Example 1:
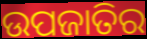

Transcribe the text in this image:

ଉପଜାତିର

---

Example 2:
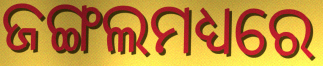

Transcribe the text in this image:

ଜଙ୍ଗଲମଧ୍ୟରେ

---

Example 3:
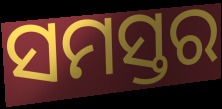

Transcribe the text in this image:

ସମସ୍ତର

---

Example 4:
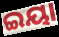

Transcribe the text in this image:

ଇୟା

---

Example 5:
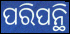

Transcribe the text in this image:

ପରିପନ୍ଥି